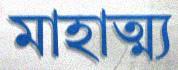
মাহাত্ম্য